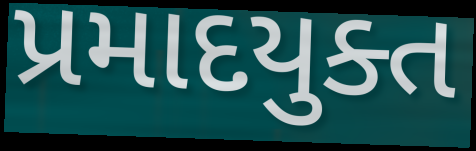
પ્રમાદયુક્ત